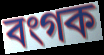
বংগক